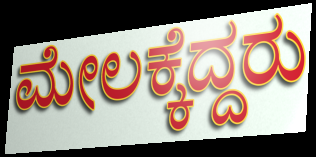
ಮೇಲಕ್ಕೆದ್ದರು